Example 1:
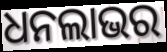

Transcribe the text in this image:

ଧନଲାଭର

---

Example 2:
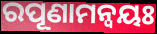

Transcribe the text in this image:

ରପୂଣାମନ୍ଵୟଃ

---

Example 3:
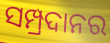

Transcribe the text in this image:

ସମ୍ପ୍ରଦାନର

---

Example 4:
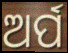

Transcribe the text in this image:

ଅର୍ପ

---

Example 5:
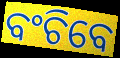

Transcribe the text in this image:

ବଂଚିବେ